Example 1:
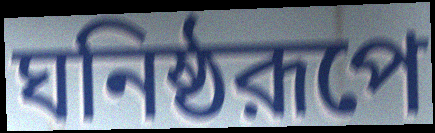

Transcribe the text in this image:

ঘনিষ্ঠরূপে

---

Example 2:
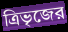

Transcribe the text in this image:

ত্রিভৃজের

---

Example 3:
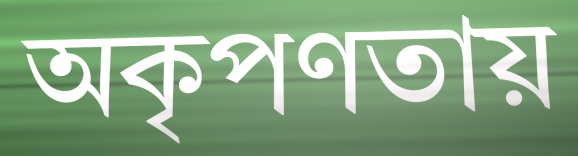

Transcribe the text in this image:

অকৃপণতায়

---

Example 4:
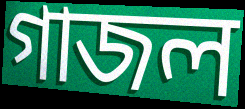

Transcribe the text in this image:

গাজল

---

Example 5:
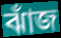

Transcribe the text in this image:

ঝাঁজ